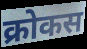
क्रोकस